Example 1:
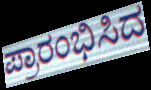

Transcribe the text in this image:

ಪ್ರಾರಂಭಿಸಿದ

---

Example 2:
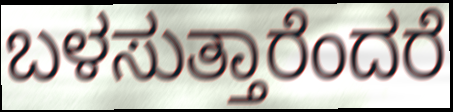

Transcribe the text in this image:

ಬಳಸುತ್ತಾರೆಂದರೆ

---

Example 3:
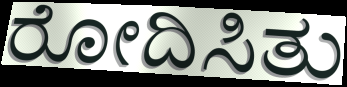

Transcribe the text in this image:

ರೋದಿಸಿತು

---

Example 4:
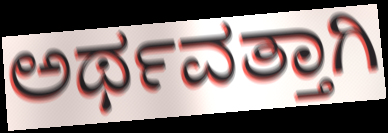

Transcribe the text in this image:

ಅರ್ಥವತ್ತಾಗಿ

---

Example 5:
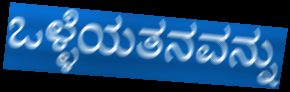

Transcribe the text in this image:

ಒಳ್ಳೆಯತನವನ್ನು